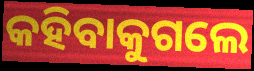
କହିବାକୁଗଲେ